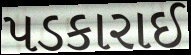
પડકારાઈ